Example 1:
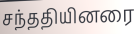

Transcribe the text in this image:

சந்ததியினரை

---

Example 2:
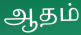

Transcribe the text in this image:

ஆதம்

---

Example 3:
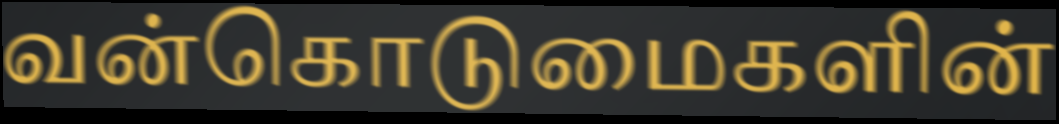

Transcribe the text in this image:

வன்கொடுமைகளின்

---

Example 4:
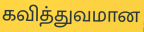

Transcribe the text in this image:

கவித்துவமான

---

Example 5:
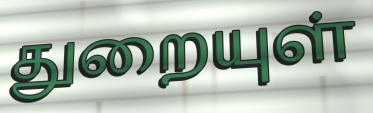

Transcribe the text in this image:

துறையுள்